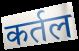
कर्तल